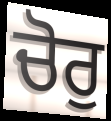
ਚੋਰੁ